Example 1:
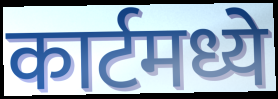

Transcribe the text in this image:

कार्टमध्ये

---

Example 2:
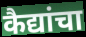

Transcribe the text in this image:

कैद्यांचा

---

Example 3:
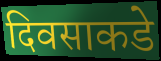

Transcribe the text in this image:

दिवसाकडे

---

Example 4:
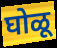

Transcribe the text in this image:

घोळू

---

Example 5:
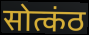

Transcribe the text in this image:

सोत्कंठ